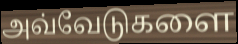
அவ்வேடுகளை